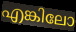
എങ്കിലോ